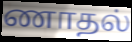
ணாதல்